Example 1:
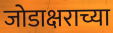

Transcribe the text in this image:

जोडाक्षराच्या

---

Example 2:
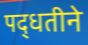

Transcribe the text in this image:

पद्‍धतीने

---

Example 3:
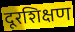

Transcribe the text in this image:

दूरशिक्षण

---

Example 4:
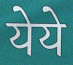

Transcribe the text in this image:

येये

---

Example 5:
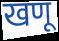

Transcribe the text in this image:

खणू